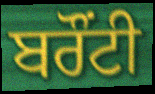
ਬਰੌਂਟੀ